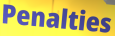
Penalties